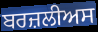
ਬਰਜ਼ਲੀਅਸ